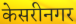
केसरीनगर